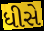
ધીસે